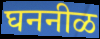
घननीळ